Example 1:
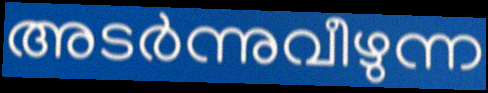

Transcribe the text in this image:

അടർന്നുവീഴുന്ന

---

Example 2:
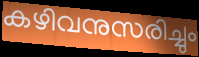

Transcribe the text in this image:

കഴിവനുസരിച്ചും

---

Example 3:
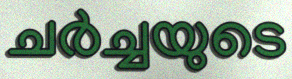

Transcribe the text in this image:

ചർച്ചയുടെ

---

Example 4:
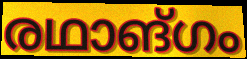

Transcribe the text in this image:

രഥാങ്ഗം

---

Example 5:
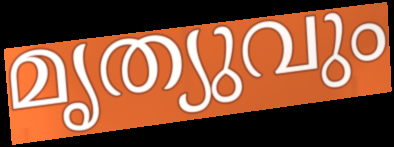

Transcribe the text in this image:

മൃത്യുവും